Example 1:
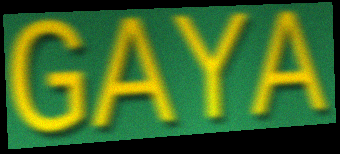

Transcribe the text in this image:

GAYA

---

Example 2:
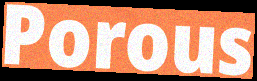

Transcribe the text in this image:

Porous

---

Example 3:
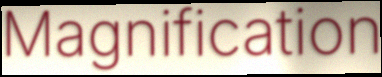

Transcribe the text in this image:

Magnification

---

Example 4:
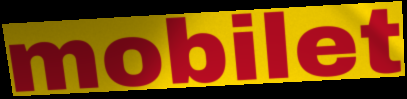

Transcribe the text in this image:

mobilet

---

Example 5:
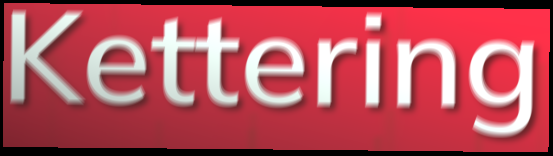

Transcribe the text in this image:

Kettering